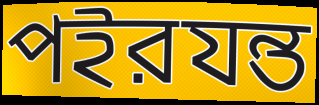
পইরযন্ত